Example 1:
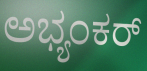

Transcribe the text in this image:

ಅಭ್ಯಂಕರ್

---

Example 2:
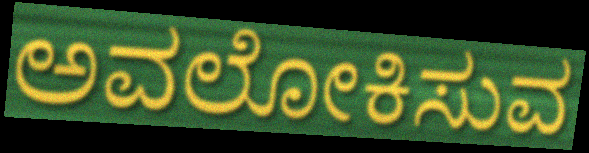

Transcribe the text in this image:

ಅವಲೋಕಿಸುವ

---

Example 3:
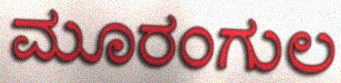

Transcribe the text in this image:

ಮೂರಂಗುಲ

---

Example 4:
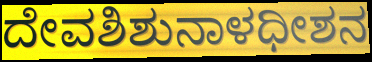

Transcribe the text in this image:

ದೇವಶಿಶುನಾಳಧೀಶನ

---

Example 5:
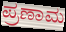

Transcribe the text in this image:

ಪ್ರಣಾಮ